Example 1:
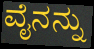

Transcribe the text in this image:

ವೈನನ್ನು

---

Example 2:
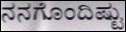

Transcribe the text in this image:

ನನಗೊಂದಿಷ್ಟು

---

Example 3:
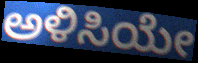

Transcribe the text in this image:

ಅಳಿಸಿಯೇ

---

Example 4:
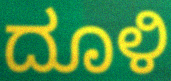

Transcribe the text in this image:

ದೂಳಿ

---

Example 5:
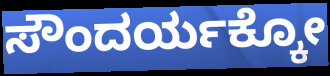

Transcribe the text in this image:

ಸೌಂದರ್ಯಕ್ಕೋ